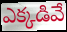
ఎక్కడివే